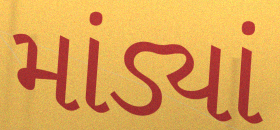
માંડ્યાં